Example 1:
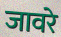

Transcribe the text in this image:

जावरे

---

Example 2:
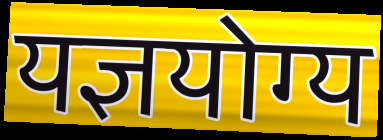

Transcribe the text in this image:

यज्ञयोग्य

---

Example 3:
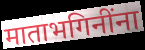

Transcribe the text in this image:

माताभगिनींना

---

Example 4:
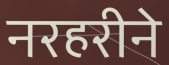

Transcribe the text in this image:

नरहरीने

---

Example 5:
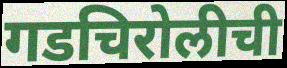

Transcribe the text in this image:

गडचिरोलीची